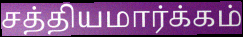
சத்தியமார்க்கம்